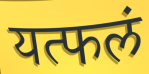
यत्फलं